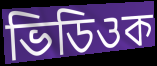
ভিডিওক